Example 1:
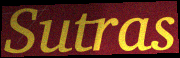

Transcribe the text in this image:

Sutras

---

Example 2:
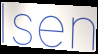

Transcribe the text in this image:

Isen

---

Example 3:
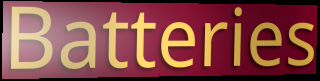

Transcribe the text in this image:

Batteries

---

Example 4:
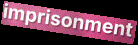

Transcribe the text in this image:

imprisonment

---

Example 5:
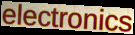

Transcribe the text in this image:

electronics